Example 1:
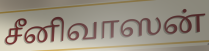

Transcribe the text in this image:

சீனிவாஸன்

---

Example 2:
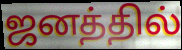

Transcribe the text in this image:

ஜனத்தில்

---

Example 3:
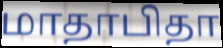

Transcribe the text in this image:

மாதாபிதா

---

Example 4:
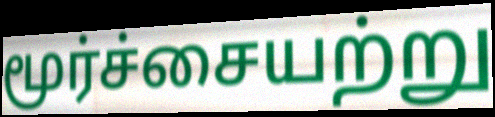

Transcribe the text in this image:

மூர்ச்சையற்று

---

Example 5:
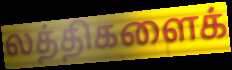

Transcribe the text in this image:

லத்திகளைக்